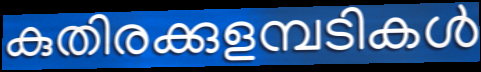
കുതിരക്കുളമ്പടികൾ